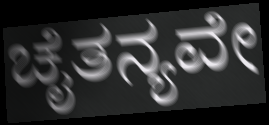
ಚೈತನ್ಯವೇ